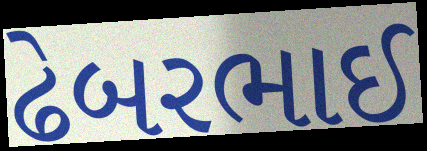
ઢેબરભાઈ